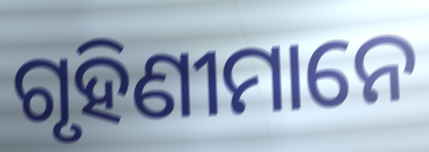
ଗୃହିଣୀମାନେ